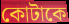
কোটাকে